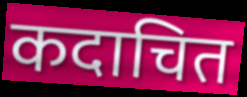
कदाचित